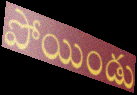
పోయిండు